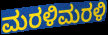
ಮರಳಿಮರಳಿ